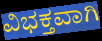
ವಿಭಕ್ತವಾಗಿ